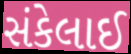
સંકેલાઈ